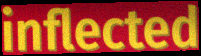
inflected